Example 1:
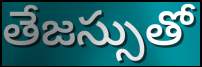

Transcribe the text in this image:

తేజస్సుతో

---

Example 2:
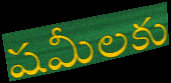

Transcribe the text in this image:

షమీలకు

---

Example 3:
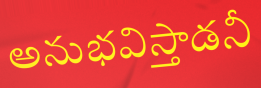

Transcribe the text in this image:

అనుభవిస్తాడనీ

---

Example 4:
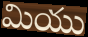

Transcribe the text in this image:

మియు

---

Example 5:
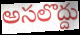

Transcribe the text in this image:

అసలొద్దు